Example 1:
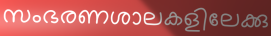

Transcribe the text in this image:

സംഭരണശാലകളിലേക്കു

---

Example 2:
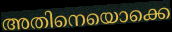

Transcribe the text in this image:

അതിനെയൊക്കെ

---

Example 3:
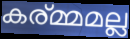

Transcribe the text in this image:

കര്മ്മമല്ല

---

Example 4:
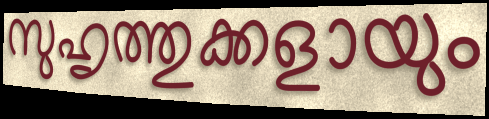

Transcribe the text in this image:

സുഹൃത്തുക്കളായും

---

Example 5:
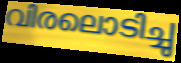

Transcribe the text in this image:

വിരലൊടിച്ചു